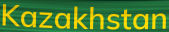
Kazakhstan